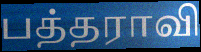
பத்தராவி